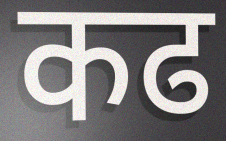
कढ